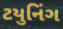
ટયુનિંગ